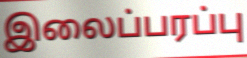
இலைப்பரப்பு